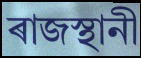
ৰাজস্থানী